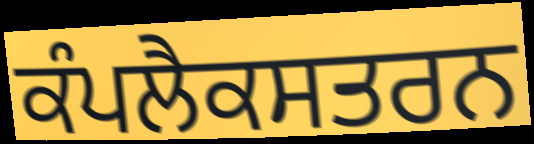
ਕੰਪਲੈਕਸਤਰਨ